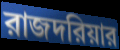
রাজদরিয়ার